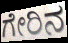
ಗೇರಿನ